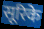
सूरिके